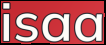
isaa